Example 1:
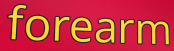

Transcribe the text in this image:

forearm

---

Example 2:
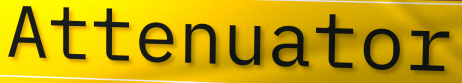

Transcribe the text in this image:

Attenuator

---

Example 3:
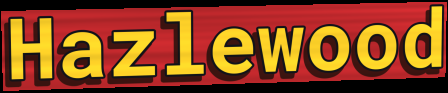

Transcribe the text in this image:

Hazlewood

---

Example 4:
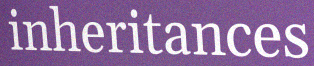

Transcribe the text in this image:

inheritances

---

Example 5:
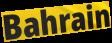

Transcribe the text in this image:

Bahrain